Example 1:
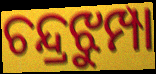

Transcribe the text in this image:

ଚନ୍ଦ୍ରଝୁମ୍ପା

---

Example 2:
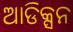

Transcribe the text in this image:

ଆଡିକ୍ସନ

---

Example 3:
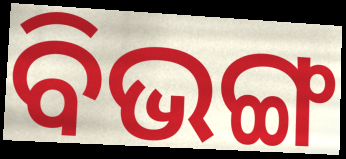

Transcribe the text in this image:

ବିଭଙ୍ଗ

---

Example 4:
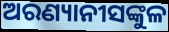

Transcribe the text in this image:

ଅରଣ୍ୟାନୀସଙ୍କୁଳ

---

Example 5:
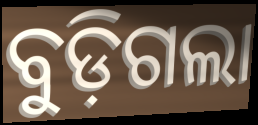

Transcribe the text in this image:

ବୁଡ଼ିଗଲା